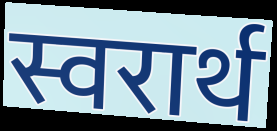
स्वरार्थ